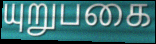
யுறுபகை